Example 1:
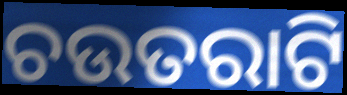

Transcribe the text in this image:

ଚଉତରାଟି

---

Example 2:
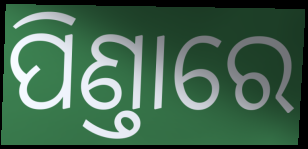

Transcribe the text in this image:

ପିଣ୍ତାରେ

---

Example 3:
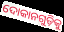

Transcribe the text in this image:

ଦୋକାନଗୁଡ଼ିକୁ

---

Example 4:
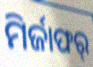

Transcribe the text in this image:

ମିର୍ଜାଫର୍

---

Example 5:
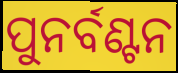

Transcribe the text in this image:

ପୁନର୍ବଣ୍ଟନ